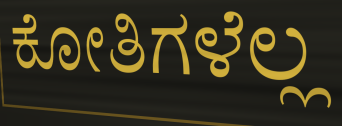
ಕೋತಿಗಳೆಲ್ಲ